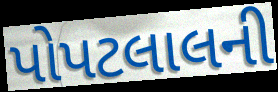
પોપટલાલની